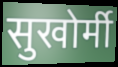
सुखोर्मी